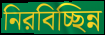
নিরবিচ্ছিন্ন